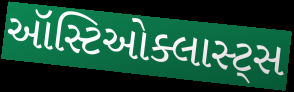
ઑસ્ટિઓક્લાસ્ટ્સ